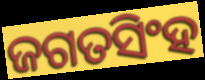
ଜଗତସିଂହ